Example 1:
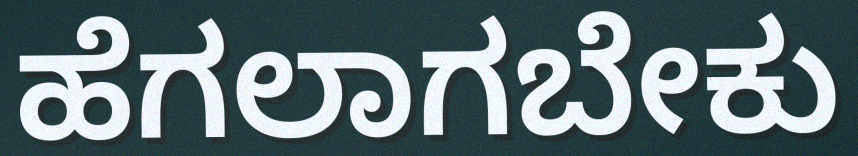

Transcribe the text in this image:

ಹೆಗಲಾಗಬೇಕು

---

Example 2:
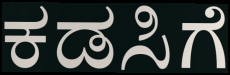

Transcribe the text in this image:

ಕಡಸಿಗೆ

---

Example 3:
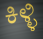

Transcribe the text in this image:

ಕಿಳ್ಳಿ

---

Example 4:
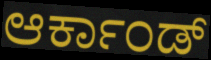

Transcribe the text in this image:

ಆರ್ಕಾಂಡ್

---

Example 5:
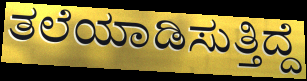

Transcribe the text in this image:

ತಲೆಯಾಡಿಸುತ್ತಿದ್ದೆ